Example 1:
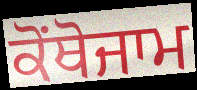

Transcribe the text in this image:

ਕੋਂਥੋਜਾਮ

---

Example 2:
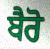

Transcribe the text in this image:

ਬੈਰੋ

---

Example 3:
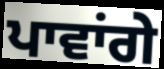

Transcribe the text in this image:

ਪਾਵਾਂਗੇ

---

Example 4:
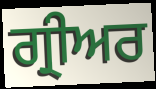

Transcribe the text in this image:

ਗ੍ਰੀਅਰ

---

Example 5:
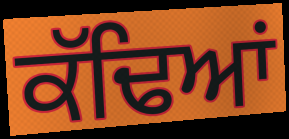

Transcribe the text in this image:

ਕੱਢਿਆਂ